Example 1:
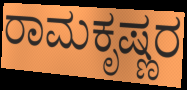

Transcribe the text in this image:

ರಾಮಕೃಷ್ಣರ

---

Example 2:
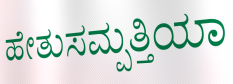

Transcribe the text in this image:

ಹೇತುಸಮ್ಪತ್ತಿಯಾ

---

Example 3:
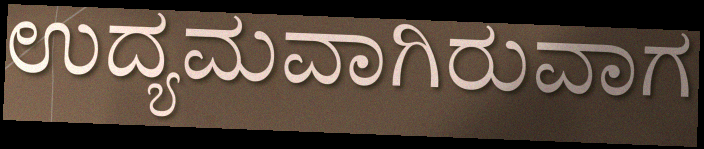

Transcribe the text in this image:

ಉದ್ಯಮವಾಗಿರುವಾಗ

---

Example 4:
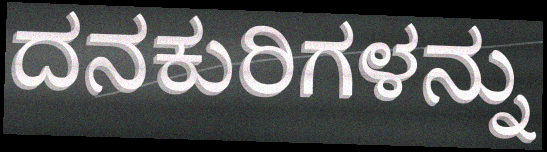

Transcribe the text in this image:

ದನಕುರಿಗಳನ್ನು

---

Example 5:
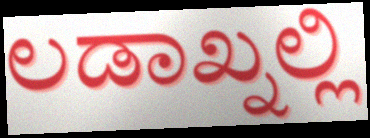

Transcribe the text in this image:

ಲಡಾಖ್ನಲ್ಲಿ